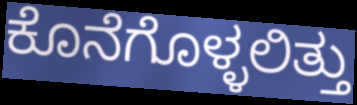
ಕೊನೆಗೊಳ್ಳಲಿತ್ತು